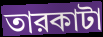
তারকাটা